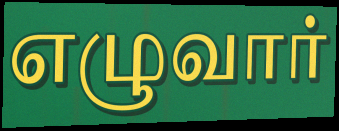
எழுவார்